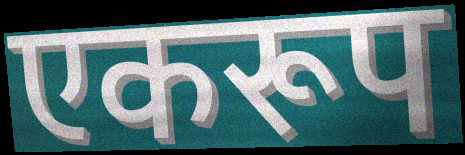
एकरूप